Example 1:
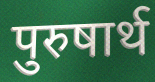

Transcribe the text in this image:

पुरुषार्थ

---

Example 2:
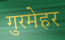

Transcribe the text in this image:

गुरमेहर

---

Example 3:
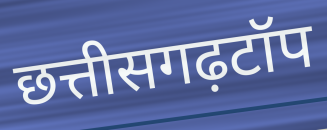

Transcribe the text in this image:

छत्तीसगढ़टॉप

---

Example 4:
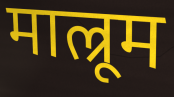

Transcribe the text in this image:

माल्रूम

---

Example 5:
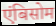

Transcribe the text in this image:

एंबिसोम